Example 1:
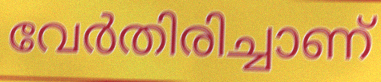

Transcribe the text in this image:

വേർതിരിച്ചാണ്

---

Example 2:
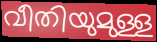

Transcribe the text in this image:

വീതിയുമുള്ള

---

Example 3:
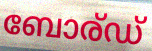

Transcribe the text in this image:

ബോര്ഡ്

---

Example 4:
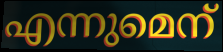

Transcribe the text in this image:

എന്നുമെന്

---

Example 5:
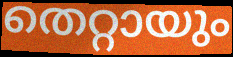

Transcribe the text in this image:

തെറ്റായും